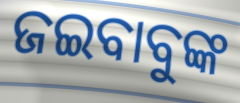
ଜଇବାବୁଙ୍କ